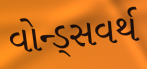
વોન્ડ્સવર્થ